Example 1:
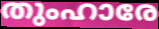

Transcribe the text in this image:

തുംഹാരേ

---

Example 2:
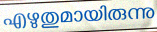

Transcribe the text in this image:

എഴുതുമായിരുന്നു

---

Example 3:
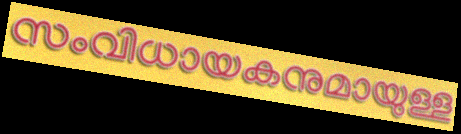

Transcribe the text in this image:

സംവിധായകനുമായുള്ള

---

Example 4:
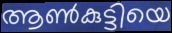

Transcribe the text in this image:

ആൺകുട്ടിയെ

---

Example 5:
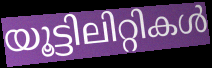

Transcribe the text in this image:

യൂട്ടിലിറ്റികൾ